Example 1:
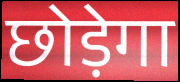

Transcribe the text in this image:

छोड़ेगा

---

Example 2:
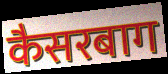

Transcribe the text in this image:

कैसरबाग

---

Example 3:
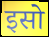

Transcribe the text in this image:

इसो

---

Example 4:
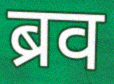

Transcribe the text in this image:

ब्रव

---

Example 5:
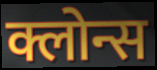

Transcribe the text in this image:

क्लोन्स